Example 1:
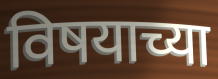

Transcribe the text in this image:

विषयाच्या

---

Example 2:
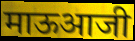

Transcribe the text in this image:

माऊआजी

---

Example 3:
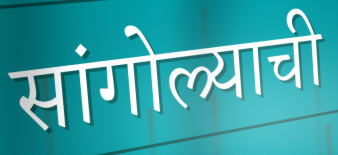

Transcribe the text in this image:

सांगोल्याची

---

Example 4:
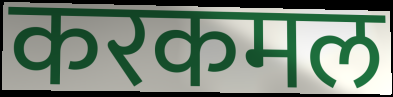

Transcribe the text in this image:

करकमल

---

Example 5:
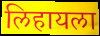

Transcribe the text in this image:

लिहायला